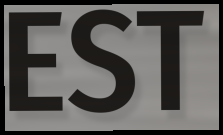
EST